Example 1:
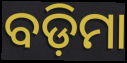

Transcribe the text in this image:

ବଡ଼ିମା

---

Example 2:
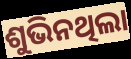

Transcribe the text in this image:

ଶୁଭିନଥିଲା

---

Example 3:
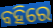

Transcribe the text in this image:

ବହିରେ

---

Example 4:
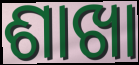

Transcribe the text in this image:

ଶାଖା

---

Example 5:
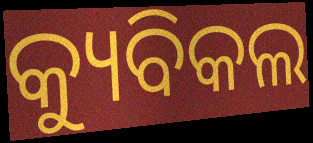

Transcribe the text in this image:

କ୍ୟୁବିକଲ